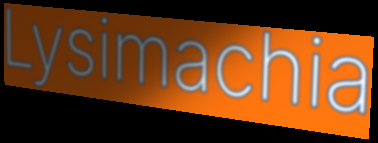
Lysimachia